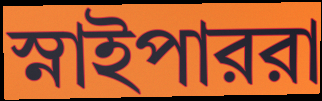
স্নাইপাররা